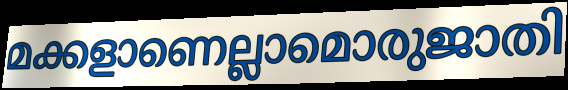
മക്കളാണെല്ലാമൊരുജാതി